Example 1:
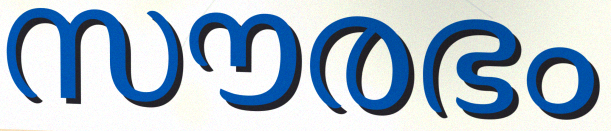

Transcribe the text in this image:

സൗരഭം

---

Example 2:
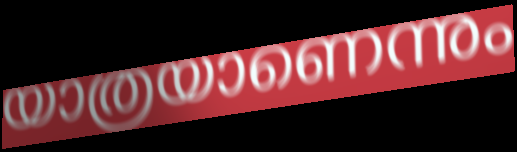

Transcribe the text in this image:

യാത്രയാണെന്നും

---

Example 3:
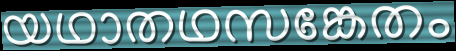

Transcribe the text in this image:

യഥാതഥസങ്കേതം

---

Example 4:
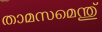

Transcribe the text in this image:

താമസമെന്തു്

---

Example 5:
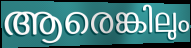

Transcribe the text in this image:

ആരെങ്കിലും